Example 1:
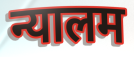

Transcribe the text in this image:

न्यालम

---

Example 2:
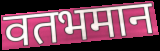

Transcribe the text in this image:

वतभमान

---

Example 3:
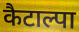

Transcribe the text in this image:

कैटाल्पा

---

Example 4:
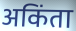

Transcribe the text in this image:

अकिंता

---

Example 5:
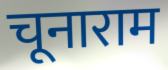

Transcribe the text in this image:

चूनाराम